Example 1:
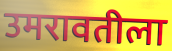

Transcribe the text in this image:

उमरावतीला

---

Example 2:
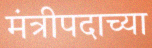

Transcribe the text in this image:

मंत्रीपदाच्या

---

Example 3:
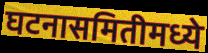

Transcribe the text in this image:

घटनासमितीमध्ये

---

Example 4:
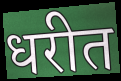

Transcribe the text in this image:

धरीत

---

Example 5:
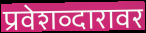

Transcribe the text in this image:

प्रवेशव्दारावर